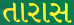
તારાસ